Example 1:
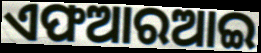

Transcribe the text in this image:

ଏଫଆରଆଇ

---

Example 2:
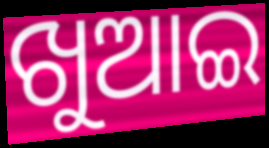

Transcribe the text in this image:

ଖୁଆଇ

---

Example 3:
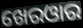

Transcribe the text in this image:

ଖେରଓାର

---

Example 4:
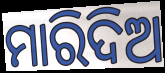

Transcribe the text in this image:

ମାରିଦିଅ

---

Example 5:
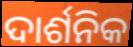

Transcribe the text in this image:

ଦାର୍ଶନିକ